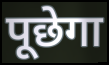
पूछेगा